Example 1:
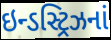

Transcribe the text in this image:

ઇન્ડસ્ટ્રિઝનાં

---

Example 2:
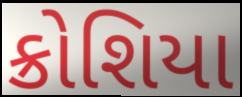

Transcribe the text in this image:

ક્રોશિયા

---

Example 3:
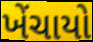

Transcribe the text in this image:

ખેંચાયો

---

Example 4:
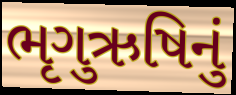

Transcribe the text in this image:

ભૃગુઋષિનું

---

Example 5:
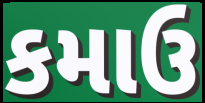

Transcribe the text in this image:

કમાઉ